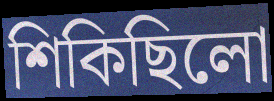
শিকিছিলো